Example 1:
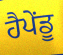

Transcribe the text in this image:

ਹੈਪੇਂਡੂ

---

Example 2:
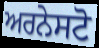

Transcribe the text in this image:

ਅਰਨੇਸਟੋ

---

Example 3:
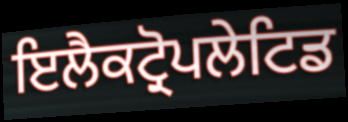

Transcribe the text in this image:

ਇਲੈਕਟ੍ਰੋਪਲੇਟਿਡ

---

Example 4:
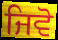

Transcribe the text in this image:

ਜਿਵੋ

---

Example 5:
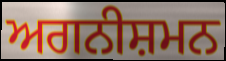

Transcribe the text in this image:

ਅਗਨੀਸ਼ਮਨ